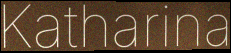
Katharina